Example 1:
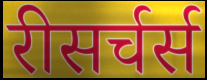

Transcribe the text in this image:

रीसर्चर्स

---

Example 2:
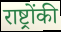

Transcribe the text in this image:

राष्ट्रोंकी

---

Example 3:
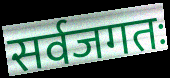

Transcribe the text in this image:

सर्वजगतः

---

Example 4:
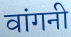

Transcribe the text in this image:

वांगनी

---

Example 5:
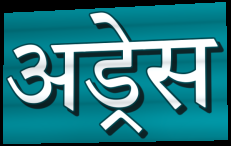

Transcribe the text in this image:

अड्रेस